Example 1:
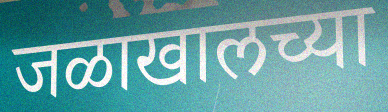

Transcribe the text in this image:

जळाखालच्या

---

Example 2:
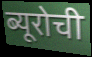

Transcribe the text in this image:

ब्यूरोची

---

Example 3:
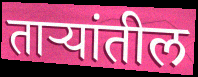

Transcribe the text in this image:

ताऱ्यांतील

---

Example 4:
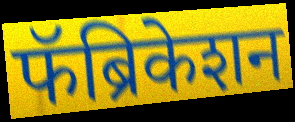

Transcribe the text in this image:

फॅब्रिकेशन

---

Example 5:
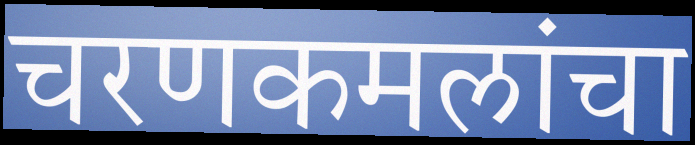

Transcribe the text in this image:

चरणकमलांचा